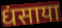
धंसाया